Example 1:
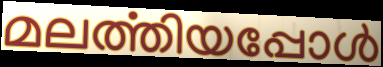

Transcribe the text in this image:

മലൎത്തിയപ്പോൾ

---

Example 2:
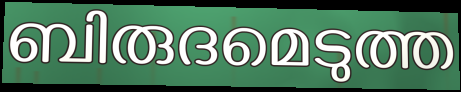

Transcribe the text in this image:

ബിരുദമെടുത്ത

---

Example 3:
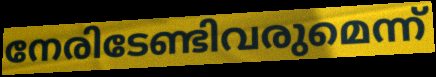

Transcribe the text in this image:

നേരിടേണ്ടിവരുമെന്ന്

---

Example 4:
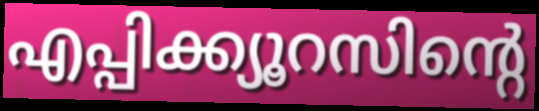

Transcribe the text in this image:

എപ്പിക്ക്യൂറസിന്റെ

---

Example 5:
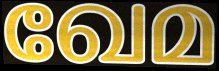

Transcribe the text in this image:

ഖേമ